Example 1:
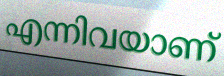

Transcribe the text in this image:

എന്നിവയാണ്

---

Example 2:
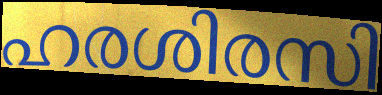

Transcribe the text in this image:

ഹരശിരസി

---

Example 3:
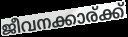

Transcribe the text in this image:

ജീവനക്കാര്ക്ക്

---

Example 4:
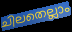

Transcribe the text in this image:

ചിലതെല്ലാം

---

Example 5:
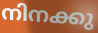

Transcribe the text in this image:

നിനക്കു